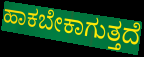
ಹಾಕಬೇಕಾಗುತ್ತದೆ